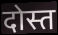
दोस्त